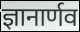
ज्ञानार्णव